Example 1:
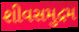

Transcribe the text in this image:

શીવસમુદ્રમ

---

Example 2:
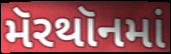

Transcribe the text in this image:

મૅરથૉનમાં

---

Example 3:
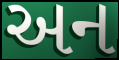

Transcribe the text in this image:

અન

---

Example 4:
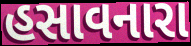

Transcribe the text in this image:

હસાવનારા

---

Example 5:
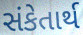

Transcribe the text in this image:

સંકેતાર્થ